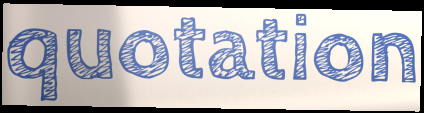
quotation